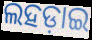
ଲହଡ଼ାଇ